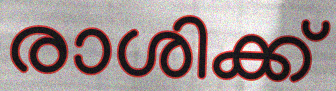
രാശിക്ക്